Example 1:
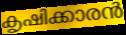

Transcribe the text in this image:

കൃഷിക്കാരൻ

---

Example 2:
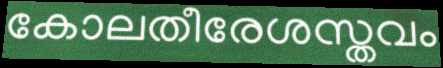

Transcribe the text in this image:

കോലതീരേശസ്തവം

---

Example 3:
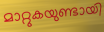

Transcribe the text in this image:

മാറ്റുകയുണ്ടായി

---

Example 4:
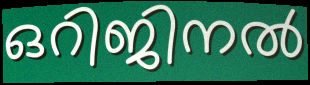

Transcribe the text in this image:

ഒറിജിനൽ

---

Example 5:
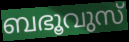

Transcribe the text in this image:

ബഭൂവുസ്